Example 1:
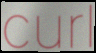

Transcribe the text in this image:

curl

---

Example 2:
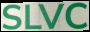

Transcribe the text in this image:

SLVC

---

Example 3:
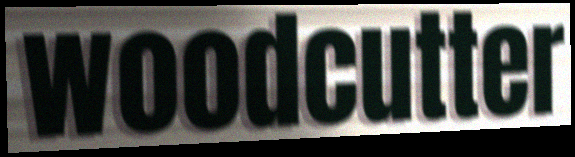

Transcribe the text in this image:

woodcutter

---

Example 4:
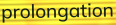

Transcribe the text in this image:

prolongation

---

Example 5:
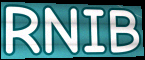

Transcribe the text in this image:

RNIB